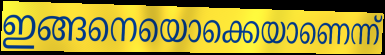
ഇങ്ങനെയൊക്കെയാണെന്ന്